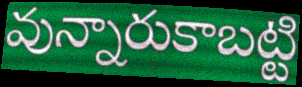
వున్నారుకాబట్టి